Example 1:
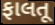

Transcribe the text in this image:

ફાલતૂ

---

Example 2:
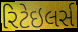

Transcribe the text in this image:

રિટેઇલર્સ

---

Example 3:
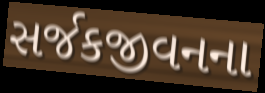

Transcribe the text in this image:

સર્જકજીવનના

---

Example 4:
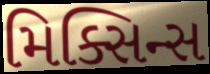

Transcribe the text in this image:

મિક્સિન્સ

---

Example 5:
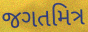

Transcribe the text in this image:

જગતમિત્ર